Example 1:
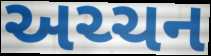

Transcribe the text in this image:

અચ્ચન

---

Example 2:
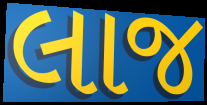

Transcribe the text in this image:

લાજ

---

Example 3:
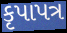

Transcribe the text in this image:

કૃપાપત્ર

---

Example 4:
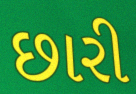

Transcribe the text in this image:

છારી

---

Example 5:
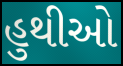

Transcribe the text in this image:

હુથીઓ